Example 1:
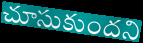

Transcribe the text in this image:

చూసుకుందని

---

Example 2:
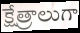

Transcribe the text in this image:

క్షేత్రాలుగా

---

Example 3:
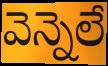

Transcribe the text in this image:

వెన్నెలే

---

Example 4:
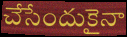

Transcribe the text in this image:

చేసేందుకైనా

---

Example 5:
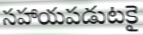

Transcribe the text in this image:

సహాయపడుటకై